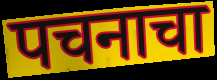
पचनाचा